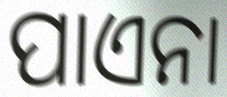
ପାଏନା